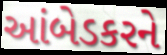
આંબેડકરને